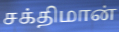
சக்திமான்